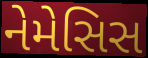
નેમેસિસ